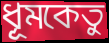
ধূমকেতু